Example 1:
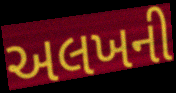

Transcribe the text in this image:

અલખની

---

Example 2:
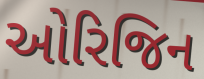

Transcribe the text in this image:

ઓરિજિન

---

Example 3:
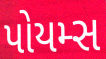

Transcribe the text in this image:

પોયમ્સ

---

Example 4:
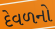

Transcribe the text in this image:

દેવળનો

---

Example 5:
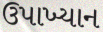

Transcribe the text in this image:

ઉપાખ્યાન